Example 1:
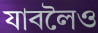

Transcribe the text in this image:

যাবলৈও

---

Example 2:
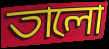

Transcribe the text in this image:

তালো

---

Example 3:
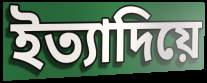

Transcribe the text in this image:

ইত্যাদিয়ে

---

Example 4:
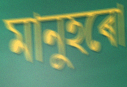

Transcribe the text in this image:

মানুহৰো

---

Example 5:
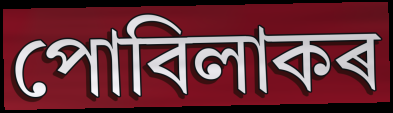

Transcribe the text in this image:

পোবিলাকৰ